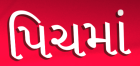
પિચમાં